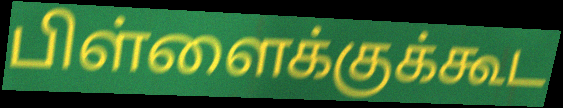
பிள்ளைக்குக்கூட